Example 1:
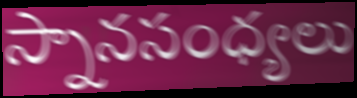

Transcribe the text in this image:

స్నానసంధ్యలు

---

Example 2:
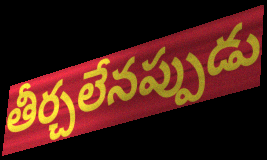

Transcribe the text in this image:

తీర్చలేనప్పుడు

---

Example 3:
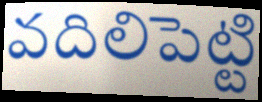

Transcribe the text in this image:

వదిలిపెట్టి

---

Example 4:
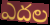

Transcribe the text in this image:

ఎదల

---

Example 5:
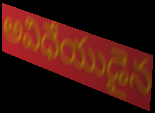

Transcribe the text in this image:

అవిధేయుడైన